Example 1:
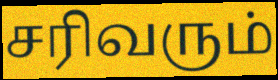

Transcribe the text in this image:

சரிவரும்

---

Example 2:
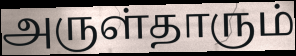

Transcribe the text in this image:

அருள்தாரும்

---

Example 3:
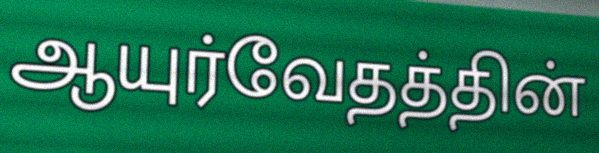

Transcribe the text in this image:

ஆயுர்வேதத்தின்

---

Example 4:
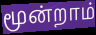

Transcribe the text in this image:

மூன்றாம்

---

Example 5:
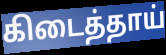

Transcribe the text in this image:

கிடைத்தாய்